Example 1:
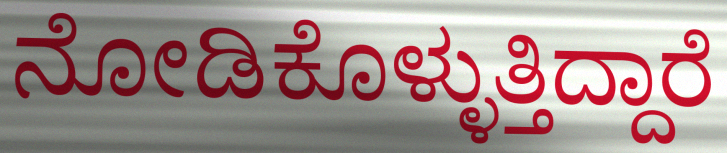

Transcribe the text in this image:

ನೋಡಿಕೊಳ್ಳುತ್ತಿದ್ದಾರೆ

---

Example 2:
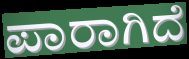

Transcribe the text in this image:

ಪಾರಾಗಿದೆ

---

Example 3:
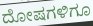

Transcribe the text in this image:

ದೋಷಗಳಿಗೂ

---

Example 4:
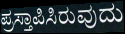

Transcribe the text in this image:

ಪ್ರಸ್ತಾಪಿಸಿರುವುದು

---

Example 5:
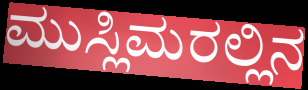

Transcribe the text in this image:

ಮುಸ್ಲಿಮರಲ್ಲಿನ